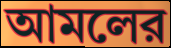
আমলের